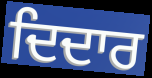
ਦਿਦਾਰ